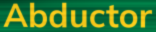
Abductor